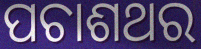
ପଚାଶଥର